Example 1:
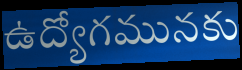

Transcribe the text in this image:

ఉద్యోగమునకు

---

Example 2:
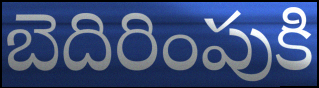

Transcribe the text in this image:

బెదిరింపుకి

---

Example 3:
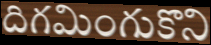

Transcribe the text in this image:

దిగమింగుకొని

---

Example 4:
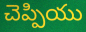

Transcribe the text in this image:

చెప్పియు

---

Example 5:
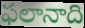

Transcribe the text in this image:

ఫలానాది